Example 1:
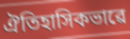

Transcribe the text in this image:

ঐতিহাসিকভাৱে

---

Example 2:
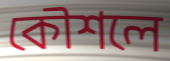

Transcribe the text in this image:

কৌশলে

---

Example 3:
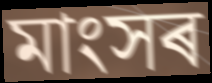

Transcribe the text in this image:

মাংসৰ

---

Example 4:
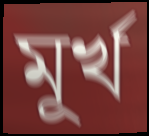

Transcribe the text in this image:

মূৰ্খ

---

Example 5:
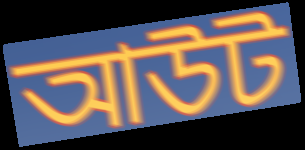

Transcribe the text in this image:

আউট